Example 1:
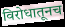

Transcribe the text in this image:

विरोधातूनच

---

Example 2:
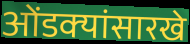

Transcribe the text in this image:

ओंडक्यांसारखे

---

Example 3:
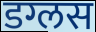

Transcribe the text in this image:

डग्लस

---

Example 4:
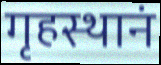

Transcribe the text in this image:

गृहस्थानं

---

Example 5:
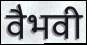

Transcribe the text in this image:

वैभवी